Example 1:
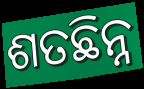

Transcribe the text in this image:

ଶତଛିନ୍ନ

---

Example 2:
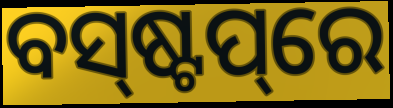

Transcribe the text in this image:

ବସ୍‌ଷ୍ଟପ୍‌ରେ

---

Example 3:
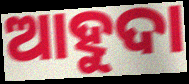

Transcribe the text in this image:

ଆହୁଦା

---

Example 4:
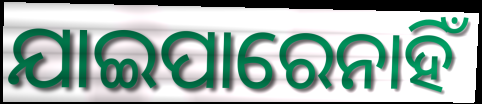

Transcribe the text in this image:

ଯାଇପାରେନାହିଁ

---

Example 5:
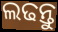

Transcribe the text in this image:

ଲଢନ୍ତୁ